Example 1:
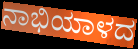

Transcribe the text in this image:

ನಾಭಿಯಾಳದ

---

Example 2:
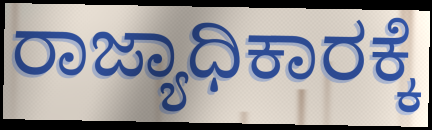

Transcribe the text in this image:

ರಾಜ್ಯಾಧಿಕಾರಕ್ಕೆ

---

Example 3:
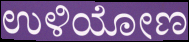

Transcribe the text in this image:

ಉಳಿಯೋಣ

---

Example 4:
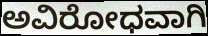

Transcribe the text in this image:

ಅವಿರೋಧವಾಗಿ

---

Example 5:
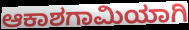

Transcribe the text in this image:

ಆಕಾಶಗಾಮಿಯಾಗಿ